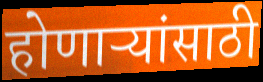
होणाऱ्यांसाठी